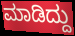
ಮಾಡಿದ್ದು